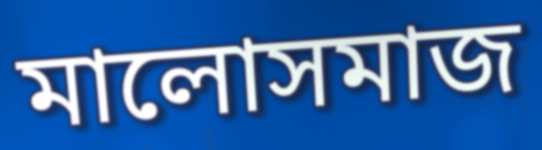
মালোসমাজ